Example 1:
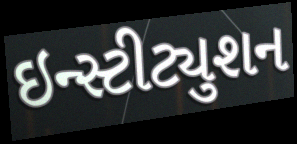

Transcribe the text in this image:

ઇન્સ્ટીટ્યુશન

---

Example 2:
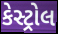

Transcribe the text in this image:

કેસ્ટ્રોલ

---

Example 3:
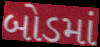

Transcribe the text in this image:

બોડમાં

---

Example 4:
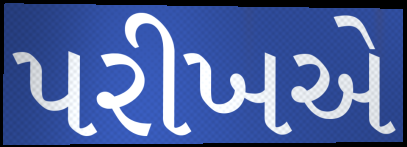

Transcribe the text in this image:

પરીખએ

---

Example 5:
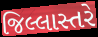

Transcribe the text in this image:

જિલ્લાસ્તરે